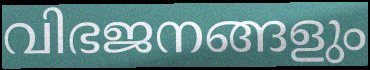
വിഭജനങ്ങളും